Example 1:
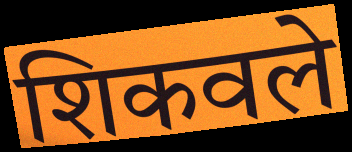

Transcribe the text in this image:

शिकवले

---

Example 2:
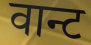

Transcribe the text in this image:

वान्ट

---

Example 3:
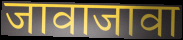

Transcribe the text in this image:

जावाजावा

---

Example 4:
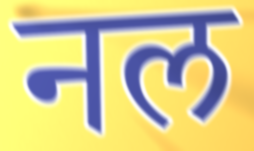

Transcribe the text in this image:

नल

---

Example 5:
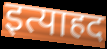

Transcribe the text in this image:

इत्याहद